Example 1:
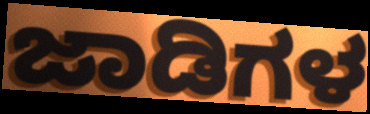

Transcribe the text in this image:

ಜಾಡಿಗಳ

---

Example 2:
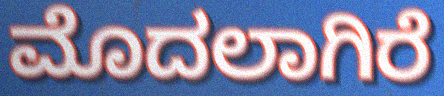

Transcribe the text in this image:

ಮೊದಲಾಗಿರೆ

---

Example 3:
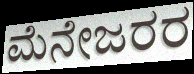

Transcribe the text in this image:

ಮೆನೇಜರರ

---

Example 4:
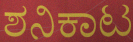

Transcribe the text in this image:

ಶನಿಕಾಟ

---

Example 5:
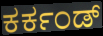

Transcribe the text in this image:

ಕರ್ಕಂಡ್